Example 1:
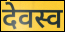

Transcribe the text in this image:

देवस्व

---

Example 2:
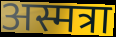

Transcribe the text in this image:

अस्मत्रा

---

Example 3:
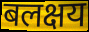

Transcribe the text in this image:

बलक्षय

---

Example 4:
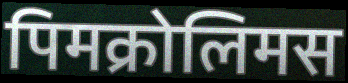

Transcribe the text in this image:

पिमक्रोलिमस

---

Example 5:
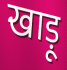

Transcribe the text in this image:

खाड़ू